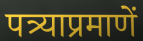
पत्र्याप्रमाणें